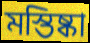
মস্তিষ্কা